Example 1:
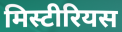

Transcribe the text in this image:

मिस्टीरियस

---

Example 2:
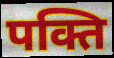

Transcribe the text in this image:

पक्ति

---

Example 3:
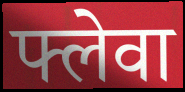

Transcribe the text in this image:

फ्लेवा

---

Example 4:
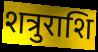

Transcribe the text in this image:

शत्रुराशि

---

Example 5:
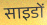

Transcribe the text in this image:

साइडों